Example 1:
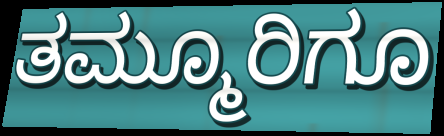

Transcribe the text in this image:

ತಮ್ಮೂರಿಗೂ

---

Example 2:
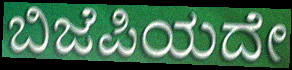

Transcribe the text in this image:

ಬಿಜೆಪಿಯದೇ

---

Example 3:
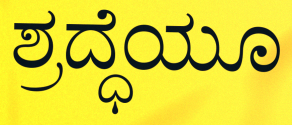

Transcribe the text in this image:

ಶ್ರದ್ಧೆಯೂ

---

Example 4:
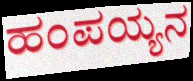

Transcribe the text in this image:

ಹಂಪಯ್ಯನ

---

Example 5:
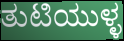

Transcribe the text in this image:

ತುಟಿಯುಳ್ಳ